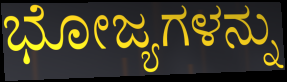
ಭೋಜ್ಯಗಳನ್ನು